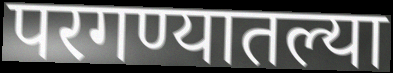
परगण्यातल्या